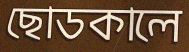
ছোডকালে